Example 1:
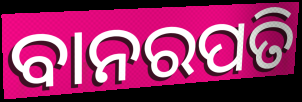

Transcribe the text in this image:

ବାନରପତି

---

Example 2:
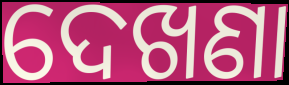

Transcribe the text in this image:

ଦେଖଣା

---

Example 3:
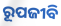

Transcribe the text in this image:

ରୂପଜୀବି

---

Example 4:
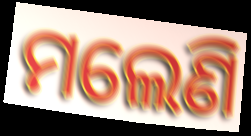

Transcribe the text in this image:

ମଲେଣି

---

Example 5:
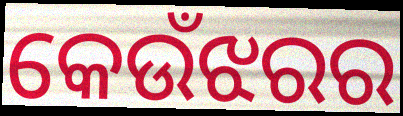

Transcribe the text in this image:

କେଉଁଝରର